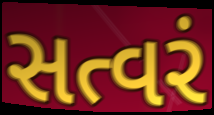
સત્વરં